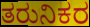
ತರುನಿಕರ